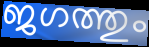
ജഗത്തും